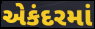
એકંદરમાં